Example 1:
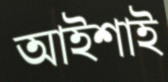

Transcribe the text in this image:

আইশাই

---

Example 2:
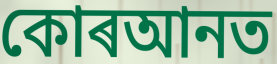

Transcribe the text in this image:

কোৰআনত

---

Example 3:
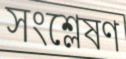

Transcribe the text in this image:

সংশ্লেষণ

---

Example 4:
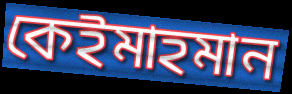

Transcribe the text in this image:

কেইমাহমান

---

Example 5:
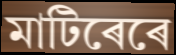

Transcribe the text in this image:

মাটিৰেৰে